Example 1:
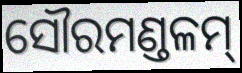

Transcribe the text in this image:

ସୌରମଣ୍ଡଳମ୍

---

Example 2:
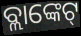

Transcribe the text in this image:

ବ୍ଲାଙ୍କେଟ୍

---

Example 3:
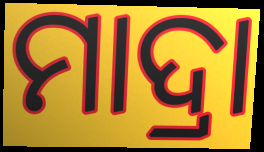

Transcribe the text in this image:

ମାଦ୍ରା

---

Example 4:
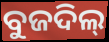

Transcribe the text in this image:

ବୁଜଦିଲ୍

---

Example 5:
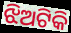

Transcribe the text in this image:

ଝିଅଟିକି